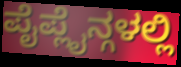
ಪೈಪ್ಲೈನ್ಗಳಲ್ಲಿ